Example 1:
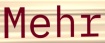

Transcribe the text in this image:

Mehr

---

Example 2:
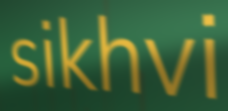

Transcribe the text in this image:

sikhvi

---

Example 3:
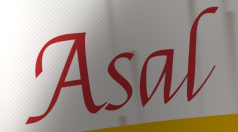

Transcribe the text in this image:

Asal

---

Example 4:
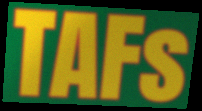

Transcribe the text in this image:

TAFs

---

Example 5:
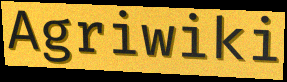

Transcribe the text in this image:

Agriwiki